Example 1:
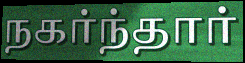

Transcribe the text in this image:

நகர்ந்தார்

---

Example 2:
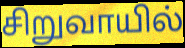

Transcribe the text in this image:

சிறுவாயில்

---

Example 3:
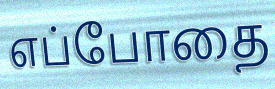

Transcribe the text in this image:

எப்போதை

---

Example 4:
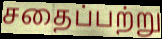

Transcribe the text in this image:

சதைப்பற்று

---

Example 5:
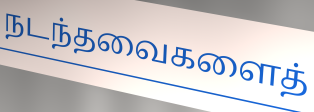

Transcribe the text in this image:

நடந்தவைகளைத்